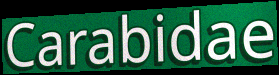
Carabidae